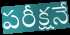
పరీక్షనే